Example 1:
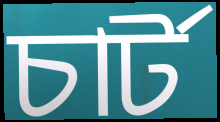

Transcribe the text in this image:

চার্ট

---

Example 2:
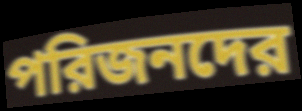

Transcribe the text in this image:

পরিজনদের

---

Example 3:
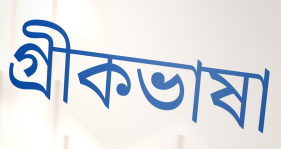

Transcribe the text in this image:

গ্রীকভাষা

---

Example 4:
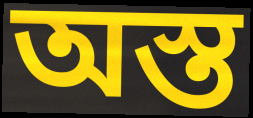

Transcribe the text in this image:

অস্ত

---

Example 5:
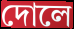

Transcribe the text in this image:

দোলে